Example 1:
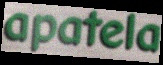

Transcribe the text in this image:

apatela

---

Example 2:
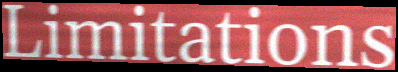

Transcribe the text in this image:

Limitations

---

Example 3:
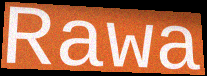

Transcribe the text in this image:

Rawa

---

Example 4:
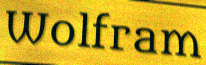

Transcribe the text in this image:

Wolfram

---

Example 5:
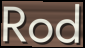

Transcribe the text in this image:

Rod